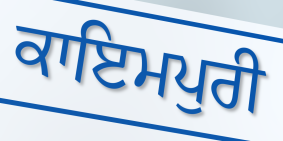
ਕਾਇਮਪੁਰੀ